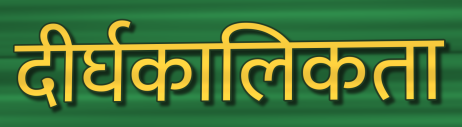
दीर्घकालिकता